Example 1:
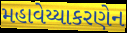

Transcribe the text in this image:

મહાવેય્યાકરણેન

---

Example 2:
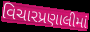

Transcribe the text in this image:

વિચારપ્રણાલીમાં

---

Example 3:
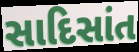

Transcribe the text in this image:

સાદિસાંત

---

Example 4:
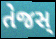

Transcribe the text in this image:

તેજસ્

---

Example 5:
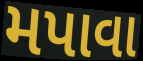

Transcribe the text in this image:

મપાવા